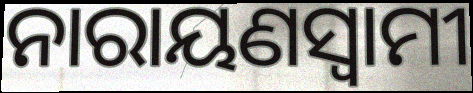
ନାରାୟଣସ୍ଵାମୀ